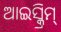
ଆଇସ୍କ୍ରିମ୍